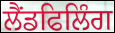
ਲੈਂਡਫਿਲਿੰਗ